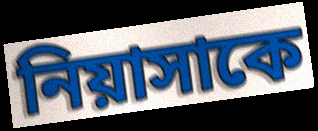
নিয়াসাকে